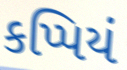
કપ્પિયં